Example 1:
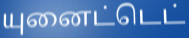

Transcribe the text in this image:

யுனைட்டெட்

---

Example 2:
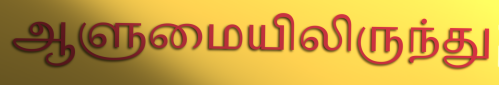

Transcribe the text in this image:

ஆளுமையிலிருந்து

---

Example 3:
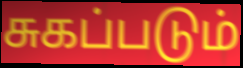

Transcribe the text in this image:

சுகப்படும்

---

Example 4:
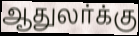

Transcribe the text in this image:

ஆதுலர்க்கு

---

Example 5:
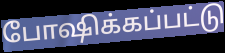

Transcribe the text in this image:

போஷிக்கப்பட்டு